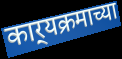
कार्यक्रमाच्या